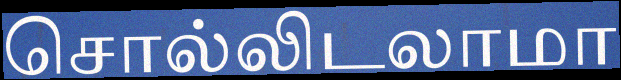
சொல்லிடலாமா